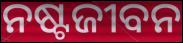
ନଷ୍ଟଜୀବନ